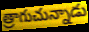
త్రాగుచున్నాడు